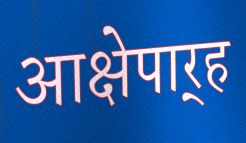
आक्षेपार्ह